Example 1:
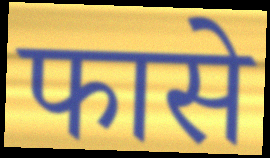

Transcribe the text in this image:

फासे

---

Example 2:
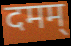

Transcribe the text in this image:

दमम्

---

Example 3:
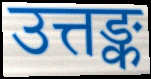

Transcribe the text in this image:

उत्तङ्क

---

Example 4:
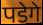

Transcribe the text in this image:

पडेगे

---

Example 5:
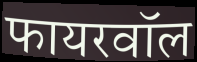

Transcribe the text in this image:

फायरवॉल